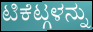
ಟಿಕೆಟ್ಗಳನ್ನು